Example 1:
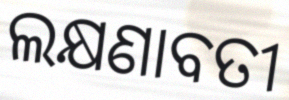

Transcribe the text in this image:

ଲକ୍ଷଣାବତୀ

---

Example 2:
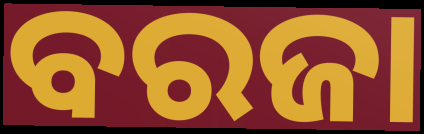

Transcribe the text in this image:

ବରଜା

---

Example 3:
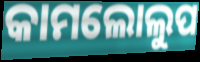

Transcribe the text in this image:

କାମଲୋଲୁପ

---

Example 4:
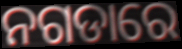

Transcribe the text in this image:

ନଗଡାରେ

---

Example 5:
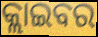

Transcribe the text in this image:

କ୍ଲାଇବର